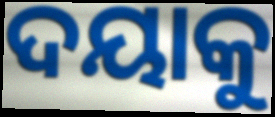
ଦୟାକୁ